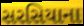
સરસિયાના